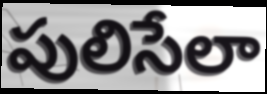
పులిసేలా